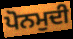
ਪੋਨਮੁਦੀ